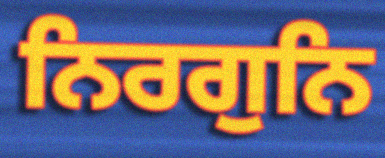
ਨਿਰਗੁਨਿ